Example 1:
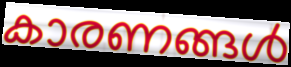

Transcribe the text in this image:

കാരണങ്ങൾ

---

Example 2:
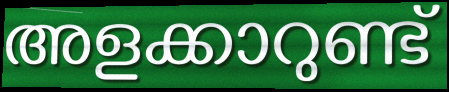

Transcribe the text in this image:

അളക്കാറുണ്ട്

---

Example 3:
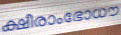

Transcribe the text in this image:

ക്ഷീരാംഭോധൗ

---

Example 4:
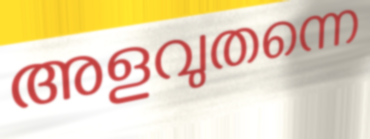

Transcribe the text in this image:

അളവുതന്നെ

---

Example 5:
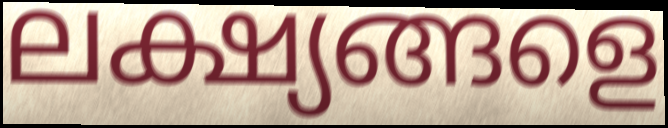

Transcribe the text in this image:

ലക്ഷ്യങ്ങളെ